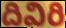
దివిరి